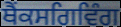
ਥੈਂਕਸਗਿਵਿੰਗ